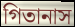
গিতানাস